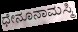
ಧೇನೂನಾಮಸ್ಮಿ